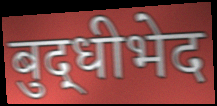
बुद्धीभेद